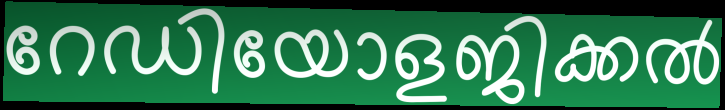
റേഡിയോളജിക്കൽ